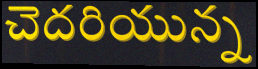
చెదరియున్న